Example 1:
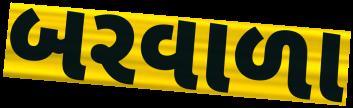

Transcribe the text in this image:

બરવાળા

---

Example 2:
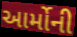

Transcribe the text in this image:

આર્મોની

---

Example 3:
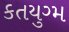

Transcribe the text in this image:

કતયુગ્મ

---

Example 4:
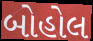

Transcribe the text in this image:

બોહોલ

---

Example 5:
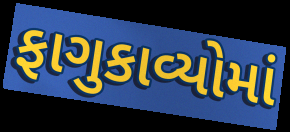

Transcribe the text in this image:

ફાગુકાવ્યોમાં